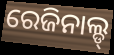
ରେଜିନାଲ୍ଡ୍